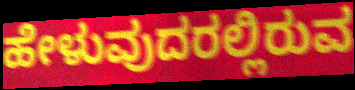
ಹೇಳುವುದರಲ್ಲಿರುವ